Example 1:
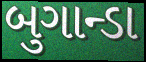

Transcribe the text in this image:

બુગાન્ડા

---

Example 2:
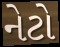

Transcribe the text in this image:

નેટો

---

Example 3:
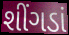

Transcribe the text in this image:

શીંગડાં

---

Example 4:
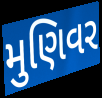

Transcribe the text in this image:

મુણિવર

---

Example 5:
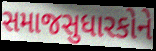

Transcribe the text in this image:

સમાજસુધારકોને